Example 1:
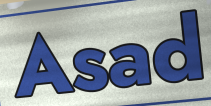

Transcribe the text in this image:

Asad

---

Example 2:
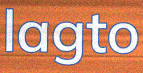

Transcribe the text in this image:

lagto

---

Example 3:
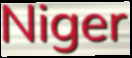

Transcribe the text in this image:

Niger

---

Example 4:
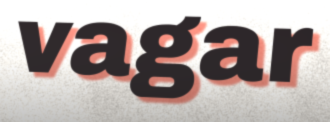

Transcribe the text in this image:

vagar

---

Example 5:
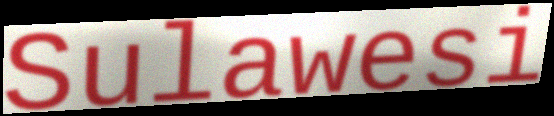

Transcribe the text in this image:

Sulawesi